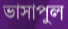
ভাসাপুল